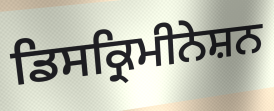
ਡਿਸਕ੍ਰਿਮੀਨੇਸ਼ਨ